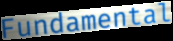
Fundamental